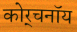
कोर्चनॉय